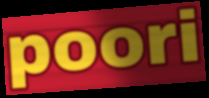
poori